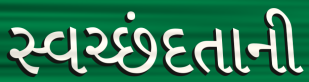
સ્વચ્છંદતાની